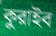
কুরাইব